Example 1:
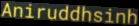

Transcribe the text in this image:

Aniruddhsinh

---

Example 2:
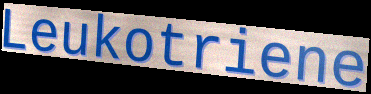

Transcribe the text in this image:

Leukotriene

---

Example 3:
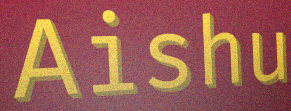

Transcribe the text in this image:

Aishu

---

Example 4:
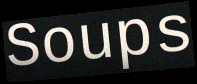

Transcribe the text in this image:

Soups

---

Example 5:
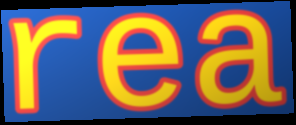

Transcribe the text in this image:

rea